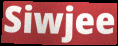
Siwjee